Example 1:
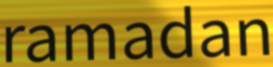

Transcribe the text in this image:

ramadan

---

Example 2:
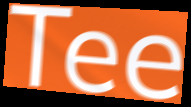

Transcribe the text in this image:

Tee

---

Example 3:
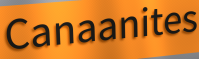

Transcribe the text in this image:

Canaanites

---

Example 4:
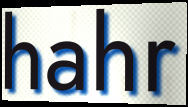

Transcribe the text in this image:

hahr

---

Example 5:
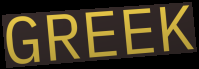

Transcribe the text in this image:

GREEK